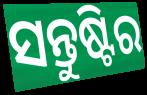
ସନ୍ତୁଷ୍ଟିର